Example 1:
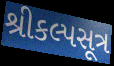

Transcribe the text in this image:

શ્રીકલ્પસૂત્ર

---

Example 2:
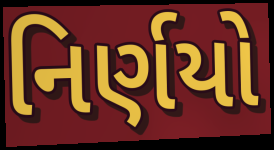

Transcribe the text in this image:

નિર્ણયો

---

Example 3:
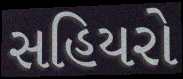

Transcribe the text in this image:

સહિયરો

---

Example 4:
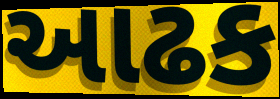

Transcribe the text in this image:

આઢક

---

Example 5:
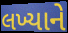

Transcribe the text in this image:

લખ્યાને